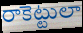
రాకెట్టులా